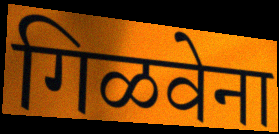
गिळवेना